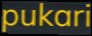
pukari